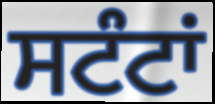
ਸਟੰਟਾਂ